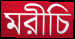
মরীচি